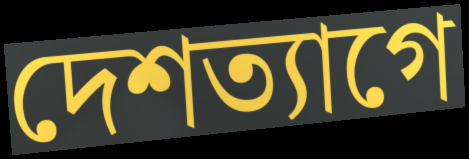
দেশত্যাগে